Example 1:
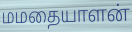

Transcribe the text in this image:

மமதையாளன்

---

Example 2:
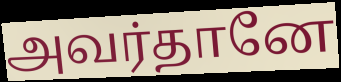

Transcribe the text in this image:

அவர்தானே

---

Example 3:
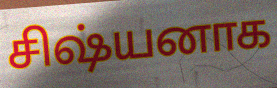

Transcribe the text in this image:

சிஷ்யனாக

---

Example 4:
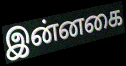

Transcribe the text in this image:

இன்னகை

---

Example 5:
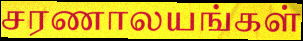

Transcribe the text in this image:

சரணாலயங்கள்